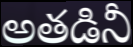
అతడినీ